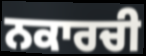
ਨਕਾਰਚੀ